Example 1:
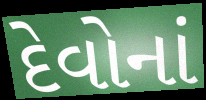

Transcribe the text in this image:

દેવોનાં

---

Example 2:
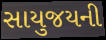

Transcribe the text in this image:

સાયુજયની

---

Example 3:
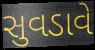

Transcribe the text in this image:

સુવડાવે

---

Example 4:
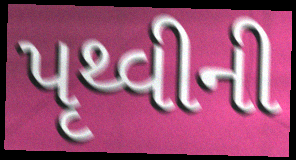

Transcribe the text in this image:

પૃથ્વીની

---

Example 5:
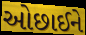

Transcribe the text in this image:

ઓછાઈને